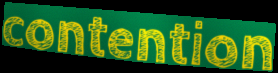
contention